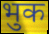
भुक